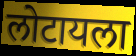
लोटायला